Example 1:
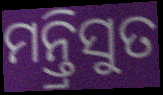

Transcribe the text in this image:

ମନ୍ତ୍ରିସୁତ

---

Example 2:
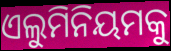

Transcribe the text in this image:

ଏଲୁମିନିୟମକୁ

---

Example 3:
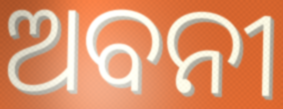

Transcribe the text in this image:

ଅବନୀ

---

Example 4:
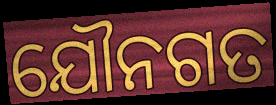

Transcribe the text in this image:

ଯୌନଗତ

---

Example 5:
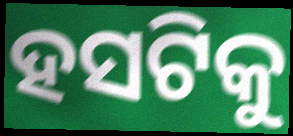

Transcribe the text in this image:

ହସଟିକୁ